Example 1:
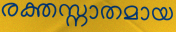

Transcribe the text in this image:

രക്തസ്നാതമായ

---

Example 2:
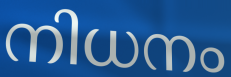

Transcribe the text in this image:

നിധനം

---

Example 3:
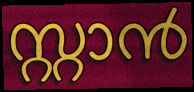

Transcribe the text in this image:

സ്റ്റാൻ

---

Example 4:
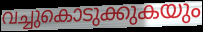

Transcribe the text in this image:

വച്ചുകൊടുക്കുകയും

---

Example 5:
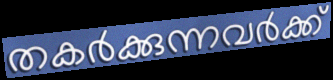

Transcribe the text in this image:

തകർക്കുന്നവർക്ക്